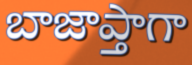
బాజాప్తాగా